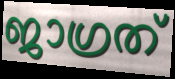
ജാഗ്രത്